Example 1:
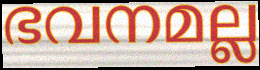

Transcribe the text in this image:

ഭവനമല്ല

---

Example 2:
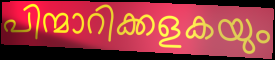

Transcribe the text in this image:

പിന്മാറിക്കളകയും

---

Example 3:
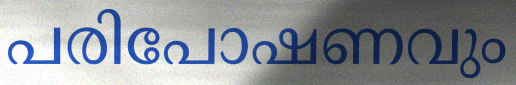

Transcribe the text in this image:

പരിപോഷണവും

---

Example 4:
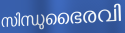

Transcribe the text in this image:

സിന്ധുഭൈരവി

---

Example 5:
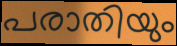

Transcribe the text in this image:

പരാതിയും